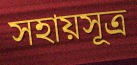
সহায়সূত্র